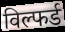
विल्फर्ड